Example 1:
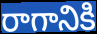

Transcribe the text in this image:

రాగానికి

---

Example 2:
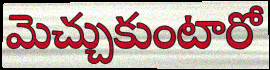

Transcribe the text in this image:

మెచ్చుకుంటారో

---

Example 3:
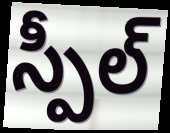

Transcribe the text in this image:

స్పీల్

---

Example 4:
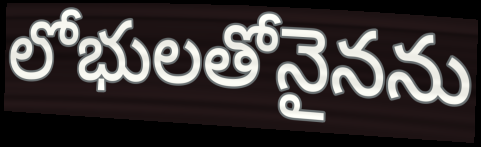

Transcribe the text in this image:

లోభులతోనైనను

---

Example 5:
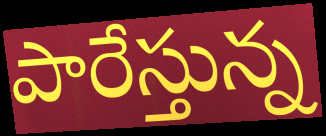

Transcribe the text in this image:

పారేస్తున్న